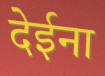
देईना